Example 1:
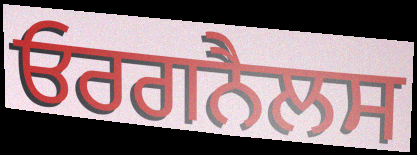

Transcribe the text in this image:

ਓਰਗਨੈਲਸ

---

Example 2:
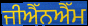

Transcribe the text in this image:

ਜੀਐੱਨਐੱਮ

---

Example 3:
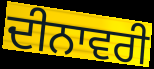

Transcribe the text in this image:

ਦੀਨਾਵਰੀ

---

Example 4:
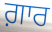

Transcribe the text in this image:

ਗ਼ਾਰ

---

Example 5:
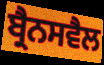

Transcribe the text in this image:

ਬ੍ਰੈਨਸਵੈਲ